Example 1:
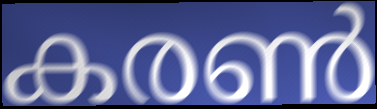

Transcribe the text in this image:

കരൺ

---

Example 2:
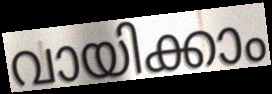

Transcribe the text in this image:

വായിക്കാം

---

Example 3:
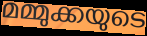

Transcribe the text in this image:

മമ്മുക്കയുടെ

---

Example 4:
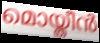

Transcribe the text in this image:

മൊയ്തീൻ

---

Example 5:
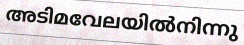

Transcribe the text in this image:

അടിമവേലയിൽനിന്നു